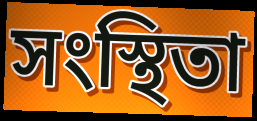
সংস্থিতা